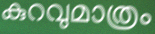
കുറവുമാത്രം